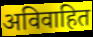
अविवाहित